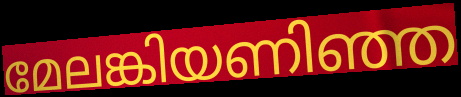
മേലങ്കിയണിഞ്ഞ